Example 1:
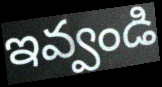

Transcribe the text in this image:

ఇవ్వండి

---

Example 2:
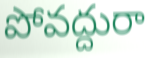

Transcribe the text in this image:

పోవద్దురా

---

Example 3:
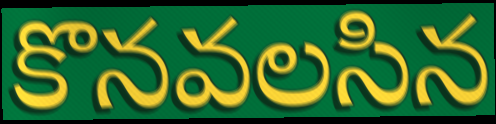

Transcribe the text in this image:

కొనవలసిన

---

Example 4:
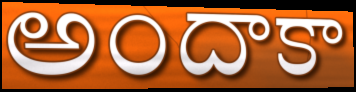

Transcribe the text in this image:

అందాకా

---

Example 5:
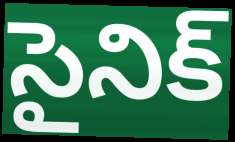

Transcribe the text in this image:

సైనిక్